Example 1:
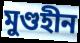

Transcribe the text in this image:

মুণ্ডহীন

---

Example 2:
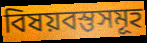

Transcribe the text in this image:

বিষয়বস্তুসমূহ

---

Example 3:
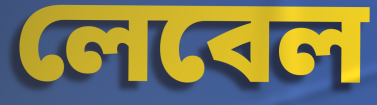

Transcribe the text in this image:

লেবেল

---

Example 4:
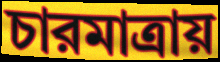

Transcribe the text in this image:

চারমাত্রায়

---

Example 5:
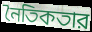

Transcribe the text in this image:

নৈতিকতার